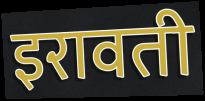
इरावती